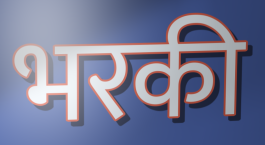
भरकी